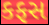
કફસ